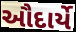
ઔદાર્યે